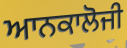
ਆਨਕਾਲੋਜੀ